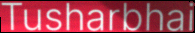
Tusharbhai